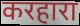
करहारा